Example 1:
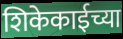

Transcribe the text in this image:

शिकेकाईच्या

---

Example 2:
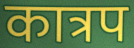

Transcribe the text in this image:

कात्रप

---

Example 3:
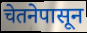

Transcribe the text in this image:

चेतनेपासून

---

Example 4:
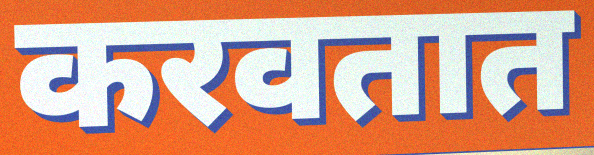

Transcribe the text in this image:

करवतात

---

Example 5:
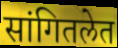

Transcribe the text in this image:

सांगितलेत